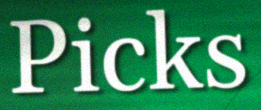
Picks